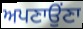
ਅਪਣਾਉਂਣਾ